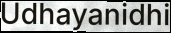
Udhayanidhi